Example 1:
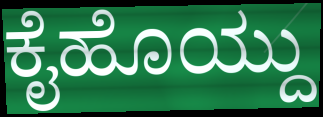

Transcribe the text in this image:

ಕೈಹೊಯ್ದು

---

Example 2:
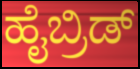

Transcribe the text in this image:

ಹೈಬ್ರಿಡ್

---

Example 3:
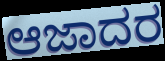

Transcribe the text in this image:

ಆಜಾದರ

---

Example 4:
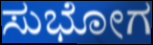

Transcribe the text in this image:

ಸುಭೋಗ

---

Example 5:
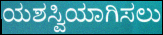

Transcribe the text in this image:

ಯಶಸ್ವಿಯಾಗಿಸಲು